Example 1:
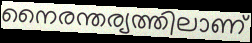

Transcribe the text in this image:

നൈരന്തര്യത്തിലാണ്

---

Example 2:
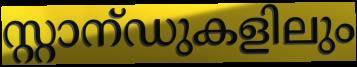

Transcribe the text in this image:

സ്റ്റാന്ഡുകളിലും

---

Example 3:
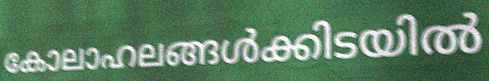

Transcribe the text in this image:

കോലാഹലങ്ങൾക്കിടയിൽ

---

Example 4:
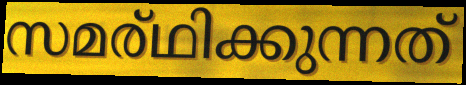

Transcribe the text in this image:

സമര്ഥിക്കുന്നത്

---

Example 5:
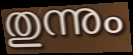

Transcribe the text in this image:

തുന്നും